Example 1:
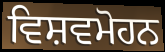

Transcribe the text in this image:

ਵਿਸ਼ਵਮੋਹਨ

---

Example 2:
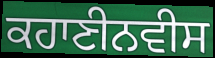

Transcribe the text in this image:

ਕਹਾਣੀਨਵੀਸ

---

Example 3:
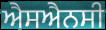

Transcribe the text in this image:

ਐਸਐਨਸੀ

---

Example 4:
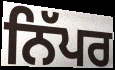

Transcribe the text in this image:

ਨਿੱਪਰ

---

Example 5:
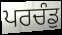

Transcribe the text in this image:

ਪਰਚੰਡੁ